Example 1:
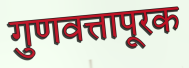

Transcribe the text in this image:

गुणवत्तापूरक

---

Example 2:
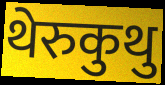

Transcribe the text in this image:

थेरुकुथु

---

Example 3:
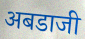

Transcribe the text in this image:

अबडाजी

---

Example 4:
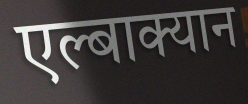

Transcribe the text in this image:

एल्बाक्यान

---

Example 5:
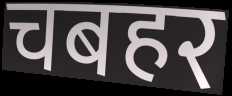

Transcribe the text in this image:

चबहर